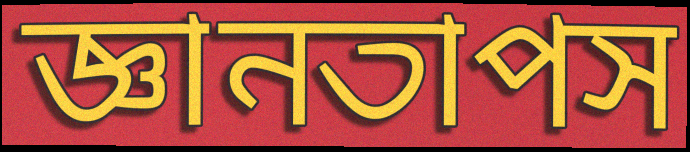
জ্ঞানতাপস